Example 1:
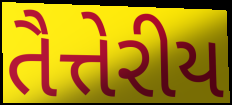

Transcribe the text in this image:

તૈત્તેરીય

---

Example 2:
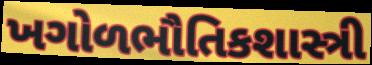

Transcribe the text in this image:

ખગોળભૌતિકશાસ્ત્રી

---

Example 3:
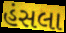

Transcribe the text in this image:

હંસલા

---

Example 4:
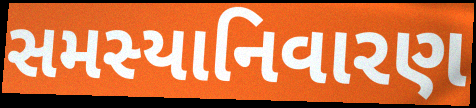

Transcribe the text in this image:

સમસ્યાનિવારણ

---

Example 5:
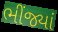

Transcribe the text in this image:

ભીંજ્યાં